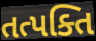
તત્પક્તિ